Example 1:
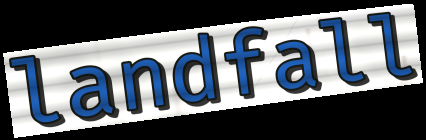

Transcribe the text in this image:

landfall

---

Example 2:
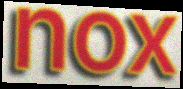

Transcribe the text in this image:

nox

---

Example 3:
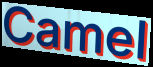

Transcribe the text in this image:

Camel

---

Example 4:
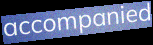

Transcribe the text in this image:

accompanied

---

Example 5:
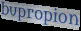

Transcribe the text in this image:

bupropion